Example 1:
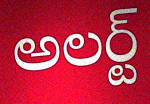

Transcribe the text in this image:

అలర్ట్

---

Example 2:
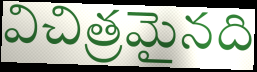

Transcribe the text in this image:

విచిత్రమైనది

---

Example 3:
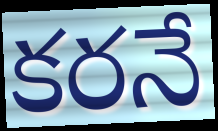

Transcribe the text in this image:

కరనే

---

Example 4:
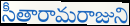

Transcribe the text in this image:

సీతారామరాజుని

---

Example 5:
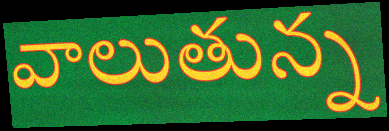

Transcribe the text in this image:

వాలుతున్న